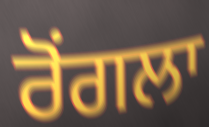
ਰੋਂਗਲਾ